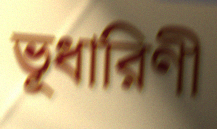
ভূধারিণী